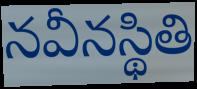
నవీనస్థితి